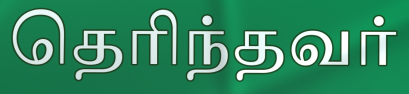
தெரிந்தவர்